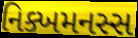
નિક્ખમનસ્સ